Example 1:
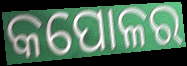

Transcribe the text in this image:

କପୋଳର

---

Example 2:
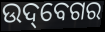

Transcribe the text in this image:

ଉଦ୍‌ବେଗର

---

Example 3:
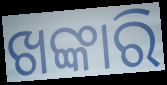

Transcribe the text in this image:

ଖଙ୍କାରି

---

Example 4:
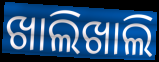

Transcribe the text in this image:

ଖାଲିଖାଲି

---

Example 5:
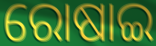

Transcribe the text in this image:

ରୋଷାଇ